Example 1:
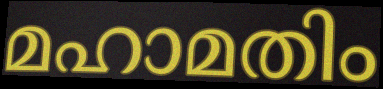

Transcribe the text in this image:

മഹാമതിം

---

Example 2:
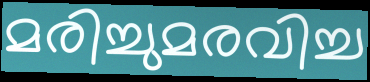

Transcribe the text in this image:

മരിച്ചുമരവിച്ച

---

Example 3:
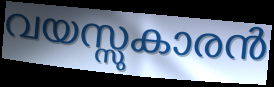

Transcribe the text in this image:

വയസ്സുകാരൻ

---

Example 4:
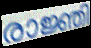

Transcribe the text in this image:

രാജ്ഞി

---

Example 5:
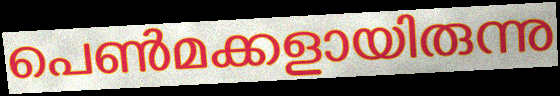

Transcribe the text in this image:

പെൺമക്കളായിരുന്നു